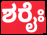
ಶರೈಃ